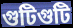
গুটিগুটি